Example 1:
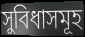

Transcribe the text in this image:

সুবিধাসমূহ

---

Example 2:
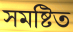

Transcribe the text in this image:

সমষ্টিত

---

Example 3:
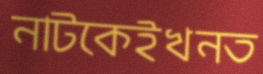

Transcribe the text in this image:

নাটকেইখনত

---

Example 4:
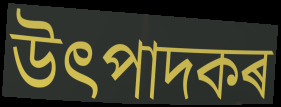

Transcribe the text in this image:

উৎপাদকৰ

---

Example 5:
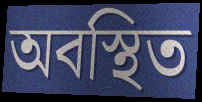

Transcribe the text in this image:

অবস্থিত